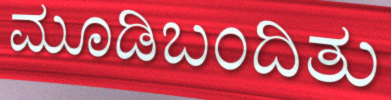
ಮೂಡಿಬಂದಿತು